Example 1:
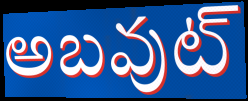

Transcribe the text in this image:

అబవుట్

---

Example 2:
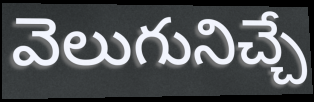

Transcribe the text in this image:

వెలుగునిచ్చే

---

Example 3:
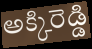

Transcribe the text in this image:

అక్కిరెడ్డి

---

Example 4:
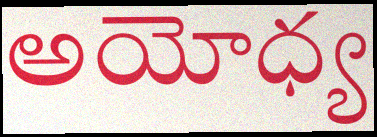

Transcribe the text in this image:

అయోధ్య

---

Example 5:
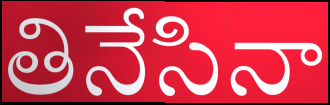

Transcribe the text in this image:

తినేసినా